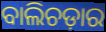
ବାଲିଚଡ଼ାର